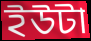
ইউটা